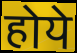
होये